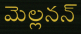
మెల్లనన్